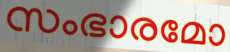
സംഭാരമോ